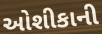
ઓશીકાની